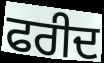
ਫਰੀਦ